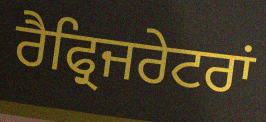
ਰੈਫ੍ਰਿਜਰੇਟਰਾਂ